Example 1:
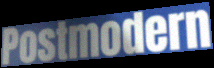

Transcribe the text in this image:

Postmodern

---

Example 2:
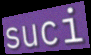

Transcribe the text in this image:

suci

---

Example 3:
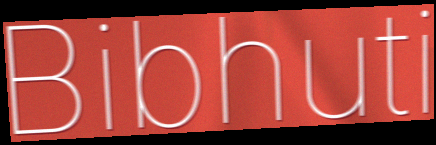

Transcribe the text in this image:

Bibhuti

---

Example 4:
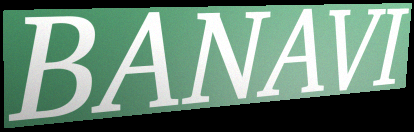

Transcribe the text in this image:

BANAVI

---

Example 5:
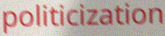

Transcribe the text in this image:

politicization